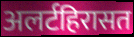
अलर्टहिरासत